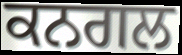
ਕਨਗਲ